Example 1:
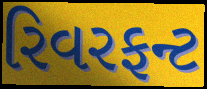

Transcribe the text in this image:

રિવરફન્ટ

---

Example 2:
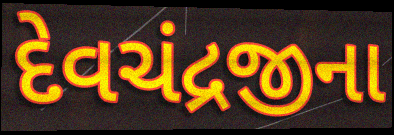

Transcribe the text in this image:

દેવચંદ્રજીના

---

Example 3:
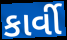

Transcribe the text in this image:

કાર્વી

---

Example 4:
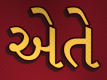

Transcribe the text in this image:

એતે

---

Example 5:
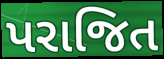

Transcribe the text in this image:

પરાજિત